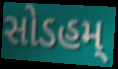
સોડહમ્